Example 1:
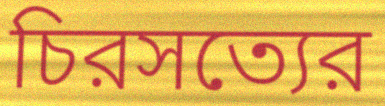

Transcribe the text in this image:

চিরসত্যের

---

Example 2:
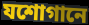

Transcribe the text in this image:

যশোগানে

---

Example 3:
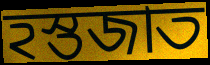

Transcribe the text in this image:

হস্তজাত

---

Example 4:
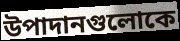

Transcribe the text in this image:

উপাদানগুলোকে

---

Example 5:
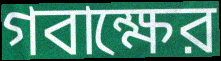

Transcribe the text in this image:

গবাক্ষের